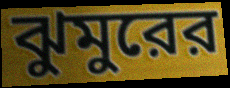
ঝুমুরের